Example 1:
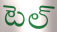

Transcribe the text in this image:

టెల్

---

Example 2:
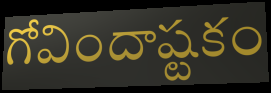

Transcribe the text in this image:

గోవిందాష్టకం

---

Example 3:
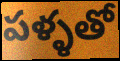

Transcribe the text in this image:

పళ్ళతో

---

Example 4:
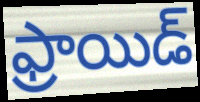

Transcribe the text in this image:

ఫ్రాయిడ్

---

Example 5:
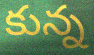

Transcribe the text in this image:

కున్న